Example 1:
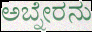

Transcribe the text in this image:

ಅಬ್ನೇರನು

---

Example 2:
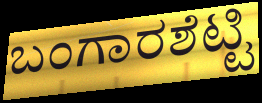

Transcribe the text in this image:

ಬಂಗಾರಶೆಟ್ಟಿ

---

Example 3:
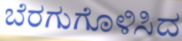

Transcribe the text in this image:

ಬೆರಗುಗೊಳಿಸಿದ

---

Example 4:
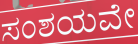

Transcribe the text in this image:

ಸಂಶಯವೇ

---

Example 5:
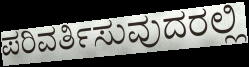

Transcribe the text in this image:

ಪರಿವರ್ತಿಸುವುದರಲ್ಲಿ